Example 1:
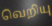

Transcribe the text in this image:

வெறியு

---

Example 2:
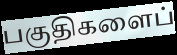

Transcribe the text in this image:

பகுதிகளைப்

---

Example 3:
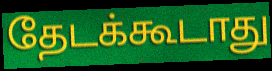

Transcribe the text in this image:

தேடக்கூடாது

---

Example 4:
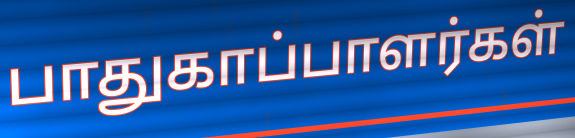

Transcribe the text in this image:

பாதுகாப்பாளர்கள்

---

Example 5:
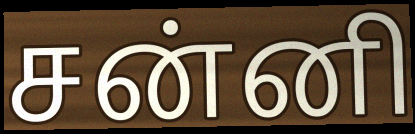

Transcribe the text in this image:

சன்னி